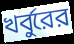
খর্বুরের